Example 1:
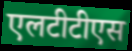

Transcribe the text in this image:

एलटीटीएस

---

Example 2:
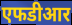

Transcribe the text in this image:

एफडीआर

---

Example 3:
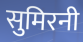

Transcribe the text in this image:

सुमिरनी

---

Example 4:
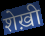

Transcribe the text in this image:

शेख़ी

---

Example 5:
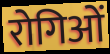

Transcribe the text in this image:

रोगिओं